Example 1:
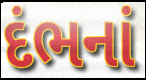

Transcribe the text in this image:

દંભનાં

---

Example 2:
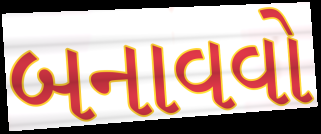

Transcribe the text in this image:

બનાવવો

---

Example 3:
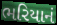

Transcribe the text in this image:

ભરિયાનં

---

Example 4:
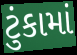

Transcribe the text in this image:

ટુંકામાં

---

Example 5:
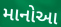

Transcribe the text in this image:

માનોઆ